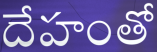
దేహంతో